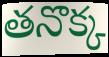
తనొక్క